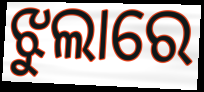
ଝୁଲାରେ